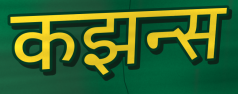
कझन्स